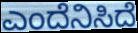
ಎಂದೆನಿಸಿದೆ